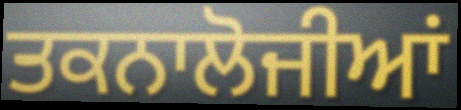
ਤਕਨਾਲੋਜੀਆਂ